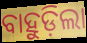
ବାହୁଡ଼ିଲା